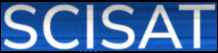
SCISAT